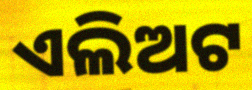
ଏଲିଅଟ